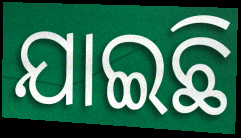
ଯାଇଛି